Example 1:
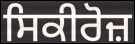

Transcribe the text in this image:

ਸਿਕੀਰੋਜ਼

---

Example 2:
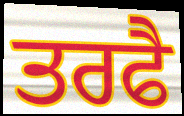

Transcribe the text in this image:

ਤਰਫੈ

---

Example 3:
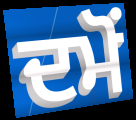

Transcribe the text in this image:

ਦਮੋਂ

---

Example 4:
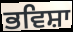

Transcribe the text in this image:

ਭਵਿਸ਼ਾ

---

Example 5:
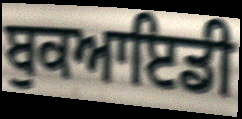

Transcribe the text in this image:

ਬੁਕਆਇਡੀ